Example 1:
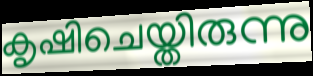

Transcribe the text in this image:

കൃഷിചെയ്തിരുന്നു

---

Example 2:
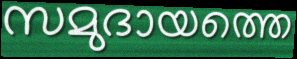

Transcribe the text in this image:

സമുദായത്തെ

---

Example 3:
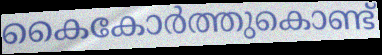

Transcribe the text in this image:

കൈകോർത്തുകൊണ്ട്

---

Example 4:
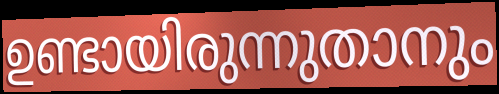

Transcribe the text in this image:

ഉണ്ടായിരുന്നുതാനും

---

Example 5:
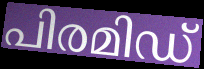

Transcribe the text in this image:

പിരമിഡ്